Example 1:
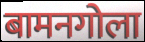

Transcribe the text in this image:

बामनगोला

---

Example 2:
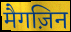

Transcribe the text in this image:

मैगज़िन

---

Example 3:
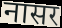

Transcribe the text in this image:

नासर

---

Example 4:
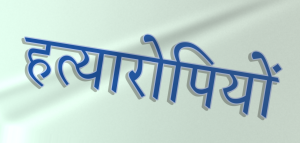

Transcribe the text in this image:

हत्यारोपियों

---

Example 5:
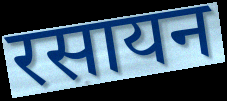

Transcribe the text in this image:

रसायन